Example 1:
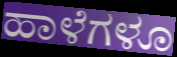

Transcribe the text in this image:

ಹಾಳೆಗಳೂ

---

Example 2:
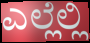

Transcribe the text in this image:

ಎಲ್ಲೆಲ್ಲಿ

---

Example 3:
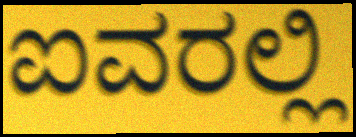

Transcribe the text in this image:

ಐವರಲ್ಲಿ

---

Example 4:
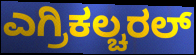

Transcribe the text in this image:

ಎಗ್ರಿಕಲ್ಚರಲ್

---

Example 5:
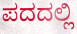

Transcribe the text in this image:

ಪದದಲ್ಲಿ